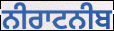
ਨੀਰਾਟਨੀਬ